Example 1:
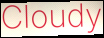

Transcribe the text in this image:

Cloudy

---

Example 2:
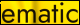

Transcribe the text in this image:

ematic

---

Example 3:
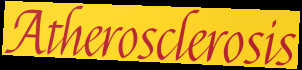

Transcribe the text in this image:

Atherosclerosis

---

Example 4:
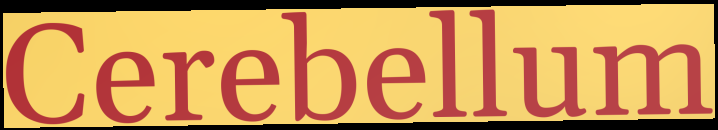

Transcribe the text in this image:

Cerebellum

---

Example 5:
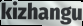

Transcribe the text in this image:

kizhangu